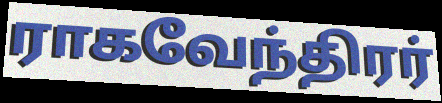
ராகவேந்திரர்